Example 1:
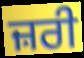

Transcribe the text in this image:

ਜ਼ਰੀ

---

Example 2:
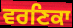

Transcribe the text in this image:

ਵਰਣਿਕਾ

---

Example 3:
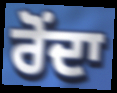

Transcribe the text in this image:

ਰੋਂਦਾ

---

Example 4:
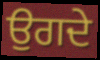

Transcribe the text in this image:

ਉਗਦੇ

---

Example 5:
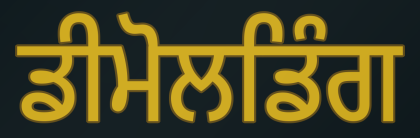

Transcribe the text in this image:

ਡੀਮੋਲਡਿੰਗ